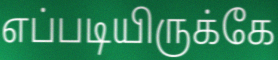
எப்படியிருக்கே